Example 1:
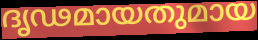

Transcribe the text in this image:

ദൃഢമായതുമായ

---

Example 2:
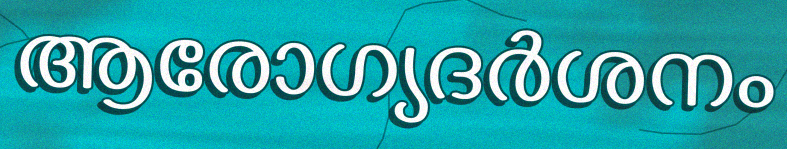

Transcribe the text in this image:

ആരോഗ്യദർശനം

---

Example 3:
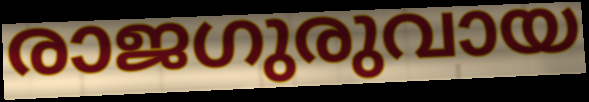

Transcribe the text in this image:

രാജഗുരുവായ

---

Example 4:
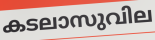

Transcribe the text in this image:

കടലാസുവില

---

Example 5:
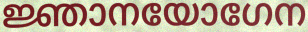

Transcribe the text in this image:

ജ്ഞാനയോഗേന